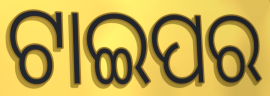
ଟାଇପର